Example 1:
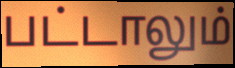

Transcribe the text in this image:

பட்டாலும்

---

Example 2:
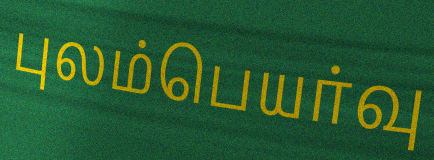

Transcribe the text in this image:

புலம்பெயர்வு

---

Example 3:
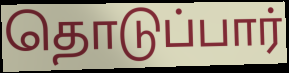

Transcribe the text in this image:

தொடுப்பார்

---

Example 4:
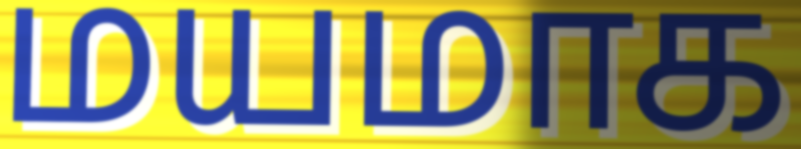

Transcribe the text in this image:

மயமாக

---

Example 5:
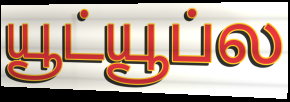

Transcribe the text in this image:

யூட்யூப்ல